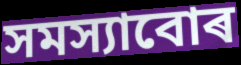
সমস্যাবোৰ